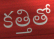
కత్తితో